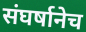
संघर्षानेच